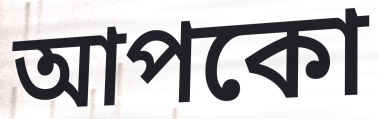
আপকো